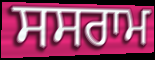
ਸਸਰਾਮ